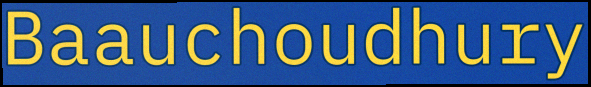
Baauchoudhury